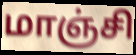
மாஞ்சி